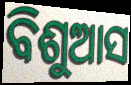
ବିଶୁଆସ